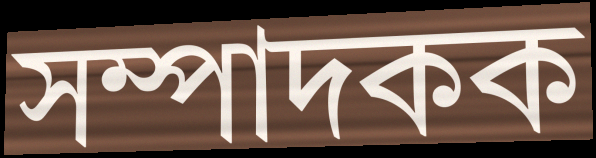
সম্পাদকক